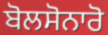
ਬੋਲਸੋਨਾਰੋ